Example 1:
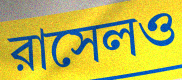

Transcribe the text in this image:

রাসেলও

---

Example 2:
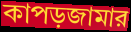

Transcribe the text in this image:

কাপড়জামার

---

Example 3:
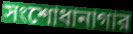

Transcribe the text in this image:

সংশোধানাগার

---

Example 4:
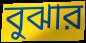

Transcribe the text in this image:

বুঝার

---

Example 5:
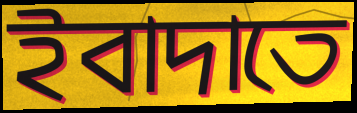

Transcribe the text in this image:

ইবাদাতে